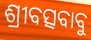
ଶ୍ରୀବତ୍ସବାବୁ